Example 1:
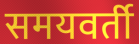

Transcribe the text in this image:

समयवर्ती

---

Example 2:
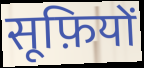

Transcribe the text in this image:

सूफ़ियों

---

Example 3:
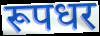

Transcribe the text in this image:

रूपधर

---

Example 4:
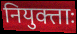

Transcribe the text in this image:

नियुक्ताः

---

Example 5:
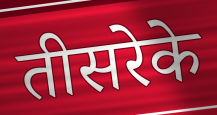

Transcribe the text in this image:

तीसरेके